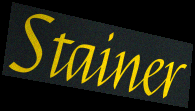
Stainer